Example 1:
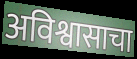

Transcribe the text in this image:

अविश्वासाचा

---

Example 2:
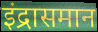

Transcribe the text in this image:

इंद्रासमान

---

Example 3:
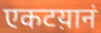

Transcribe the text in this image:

एकटय़ानं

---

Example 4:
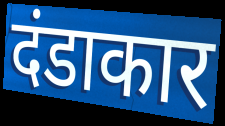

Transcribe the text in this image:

दंडाकार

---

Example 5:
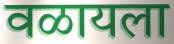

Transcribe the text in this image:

वळायला